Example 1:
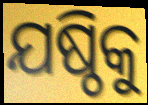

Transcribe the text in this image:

ଯଷ୍ଠିକୁ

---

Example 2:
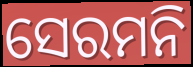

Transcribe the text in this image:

ସେରମନି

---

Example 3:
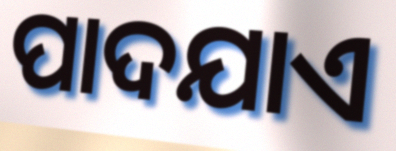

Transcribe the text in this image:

ପାଦଯାଏ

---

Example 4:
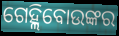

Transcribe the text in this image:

ଗେହ୍ଲିବୋଉଙ୍କର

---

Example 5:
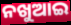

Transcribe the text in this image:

ନଖୁଆଇ